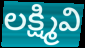
లక్ష్మివి